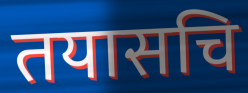
तयासचि